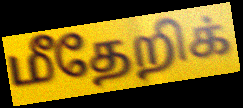
மீதேறிக்